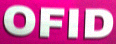
OFID